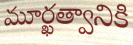
మూర్ఖత్వానికి